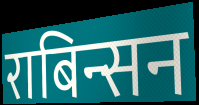
राबिन्सन